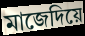
মাজেদিয়ে